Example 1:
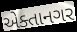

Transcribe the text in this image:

એક્તાનગર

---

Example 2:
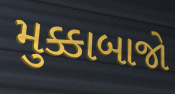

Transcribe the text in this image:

મુક્કાબાજો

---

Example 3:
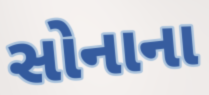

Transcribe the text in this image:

સોનાના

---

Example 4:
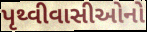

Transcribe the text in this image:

પૃથ્વીવાસીઓનો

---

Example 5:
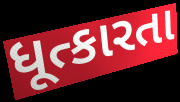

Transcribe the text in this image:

ધૂત્કારતા